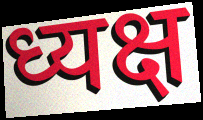
ध्यक्ष